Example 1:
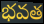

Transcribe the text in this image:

భవత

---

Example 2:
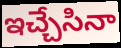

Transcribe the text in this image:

ఇచ్చేసినా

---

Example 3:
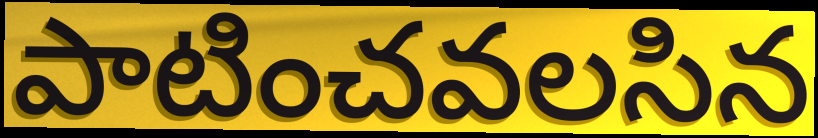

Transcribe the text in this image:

పాటించవలసిన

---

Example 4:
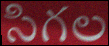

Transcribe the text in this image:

సిగల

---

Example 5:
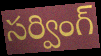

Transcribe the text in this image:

సర్వింగ్